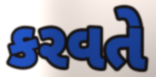
કરવતે